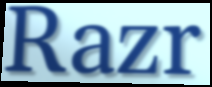
Razr